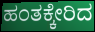
ಹಂತಕ್ಕೇರಿದ